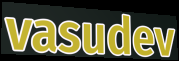
vasudev